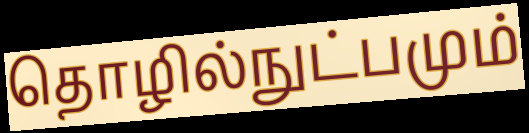
தொழில்நுட்பமும்